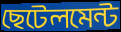
ছেটেলমেন্ট